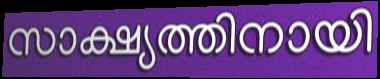
സാക്ഷ്യത്തിനായി